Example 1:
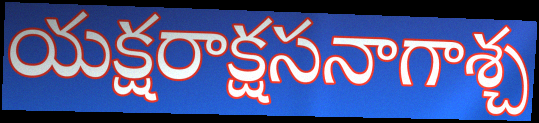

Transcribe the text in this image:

యక్షరాక్షసనాగాశ్చ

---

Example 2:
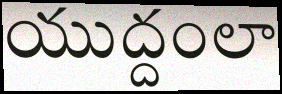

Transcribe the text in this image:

యుద్దంలా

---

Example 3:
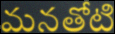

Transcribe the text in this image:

మనతోటి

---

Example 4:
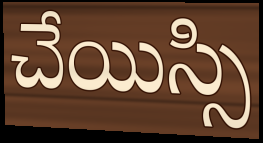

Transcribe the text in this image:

చేయిస్సి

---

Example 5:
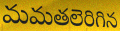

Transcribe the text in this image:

మమతలెరిగిన